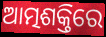
ଆତ୍ମଶକ୍ତିରେ